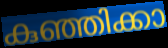
കുഞ്ഞിക്കാ